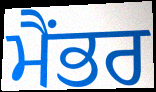
ਮੈਂਭਰ